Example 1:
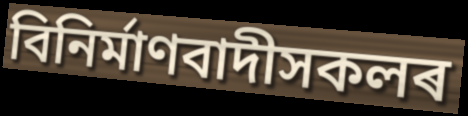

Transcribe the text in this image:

বিনিৰ্মাণবাদীসকলৰ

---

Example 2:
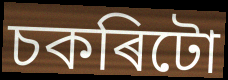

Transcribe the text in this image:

চকৰিটো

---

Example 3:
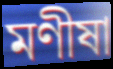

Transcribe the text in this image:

মণীষা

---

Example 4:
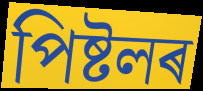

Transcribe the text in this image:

পিষ্টলৰ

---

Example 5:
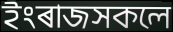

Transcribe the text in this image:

ইংৰাজসকলে